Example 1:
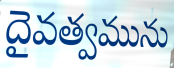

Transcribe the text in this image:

దైవత్వమును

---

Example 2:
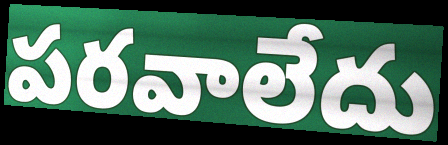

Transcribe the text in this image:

పరవాలేదు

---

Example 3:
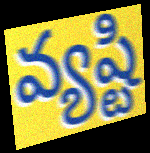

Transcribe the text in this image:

వ్యష్టి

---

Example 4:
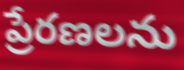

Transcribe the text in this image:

ప్రేరణలను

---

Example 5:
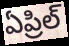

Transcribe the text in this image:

ఏప్రిల్